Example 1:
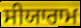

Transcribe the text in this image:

ਸੀਯਾਰਾਮ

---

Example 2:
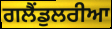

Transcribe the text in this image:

ਗਲੈਂਡੁਲਰੀਆ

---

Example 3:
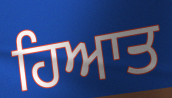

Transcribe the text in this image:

ਹਿਆਤ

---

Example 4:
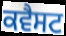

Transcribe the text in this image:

ਕਵੈਸਟ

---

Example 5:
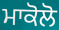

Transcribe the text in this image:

ਮਾਕੋਲੋ